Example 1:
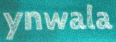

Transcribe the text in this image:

ynwala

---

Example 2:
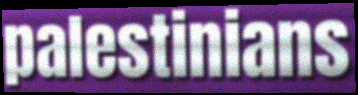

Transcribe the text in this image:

palestinians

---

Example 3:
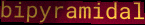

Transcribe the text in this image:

bipyramidal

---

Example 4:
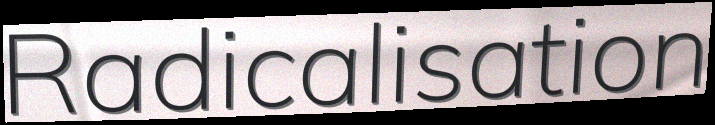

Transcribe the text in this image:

Radicalisation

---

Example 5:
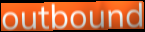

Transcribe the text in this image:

outbound